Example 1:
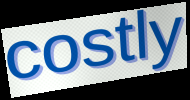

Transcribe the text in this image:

costly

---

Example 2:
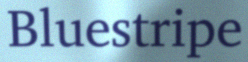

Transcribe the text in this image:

Bluestripe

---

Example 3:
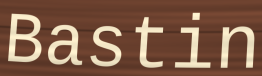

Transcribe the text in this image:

Bastin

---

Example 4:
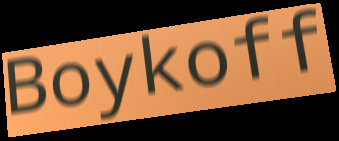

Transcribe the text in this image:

Boykoff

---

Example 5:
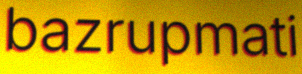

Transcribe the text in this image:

bazrupmati